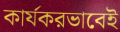
কার্যকরভাবেই